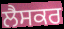
ਲੈਸਕਰ